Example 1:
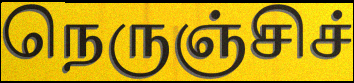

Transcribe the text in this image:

நெருஞ்சிச்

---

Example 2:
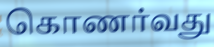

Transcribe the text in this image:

கொணர்வது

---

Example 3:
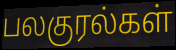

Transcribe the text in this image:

பலகுரல்கள்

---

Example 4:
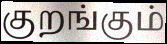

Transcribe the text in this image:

குறங்கும்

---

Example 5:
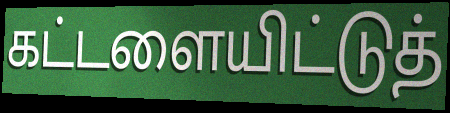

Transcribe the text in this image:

கட்டளையிட்டுத்